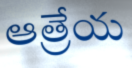
ఆత్రేయ